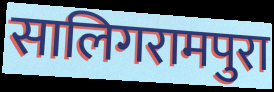
सालिगरामपुरा